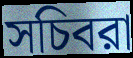
সচিবরা